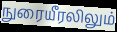
நுரையீரலிலும்